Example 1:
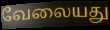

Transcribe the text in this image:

வேலையது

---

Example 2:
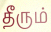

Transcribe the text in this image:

தீரும்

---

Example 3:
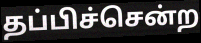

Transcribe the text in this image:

தப்பிச்சென்ற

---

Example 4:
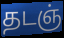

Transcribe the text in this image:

தடஞ்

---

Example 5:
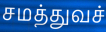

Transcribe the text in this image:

சமத்துவச்